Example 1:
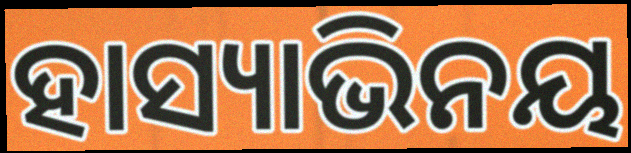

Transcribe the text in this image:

ହାସ୍ୟାଭିନୟ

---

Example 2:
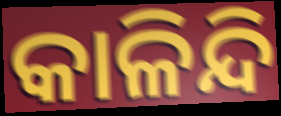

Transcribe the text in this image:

କାଳିନ୍ଦି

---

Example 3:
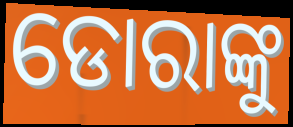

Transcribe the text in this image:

ଡୋରାଙ୍କୁ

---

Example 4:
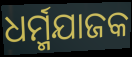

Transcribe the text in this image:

ଧର୍ମ୍ମଯାଜକ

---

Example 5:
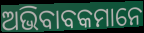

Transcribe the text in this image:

ଅଭିବାବକମାନେ